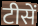
टीसें